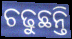
ଚଢୁଛନ୍ତି